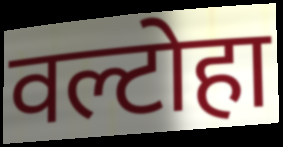
वल्टोहा